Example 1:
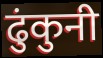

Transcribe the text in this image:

ढुंकुनी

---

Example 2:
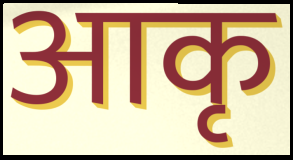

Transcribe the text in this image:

आकृ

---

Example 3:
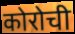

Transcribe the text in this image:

कोरोची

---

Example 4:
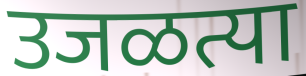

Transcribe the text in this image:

उजळत्या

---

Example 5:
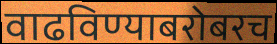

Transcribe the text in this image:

वाढविण्याबरोबरच